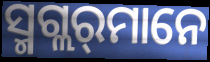
ସ୍ମଗ୍ଲର୍‌ମାନେ